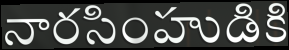
నారసింహుడికి